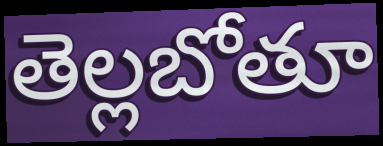
తెల్లబోతూ